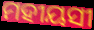
ମହୀୟସୀ